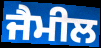
ਜੈਮੀਲ